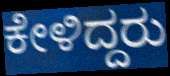
ಕೇಳಿದ್ದರು